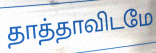
தாத்தாவிடமே